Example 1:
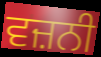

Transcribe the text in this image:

ਵਜ਼ਨੀ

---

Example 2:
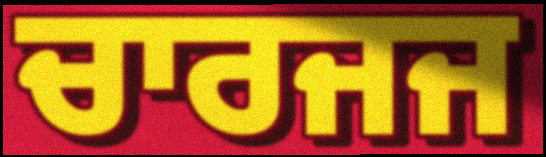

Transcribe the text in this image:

ਚਾਰਜਜ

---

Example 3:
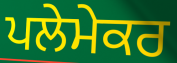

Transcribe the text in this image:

ਪਲੇਮੇਕਰ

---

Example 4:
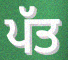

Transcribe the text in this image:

ਪੱਤ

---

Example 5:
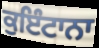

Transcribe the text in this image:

ਕੁਇੰਟਾਨਾ